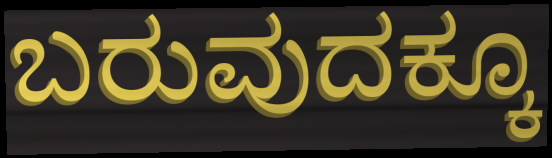
ಬರುವುದಕ್ಕೂ